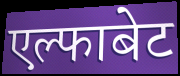
एल्फाबेट